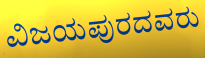
ವಿಜಯಪುರದವರು